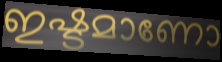
ഇഷ്ടമാണോ